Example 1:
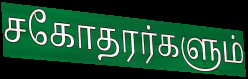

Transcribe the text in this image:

சகோதரர்களும்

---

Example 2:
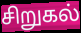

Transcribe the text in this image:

சிறுகல்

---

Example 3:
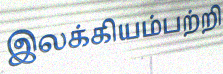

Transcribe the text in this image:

இலக்கியம்பற்றி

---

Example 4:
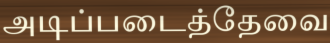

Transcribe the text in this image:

அடிப்படைத்தேவை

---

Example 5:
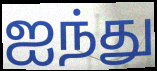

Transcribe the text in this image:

ஐந்து